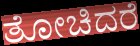
ತೋಚಿದರೆ